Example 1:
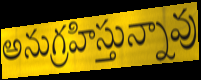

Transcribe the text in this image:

అనుగ్రహిస్తున్నావు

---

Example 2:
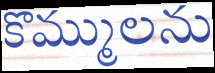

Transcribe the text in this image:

కొమ్ములను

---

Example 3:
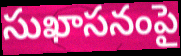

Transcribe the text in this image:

సుఖాసనంపై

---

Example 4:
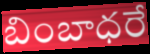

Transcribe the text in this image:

బింబాధరే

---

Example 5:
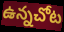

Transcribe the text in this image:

ఉన్నచోట